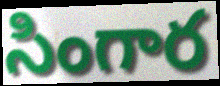
సింగార